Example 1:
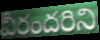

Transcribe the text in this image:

వీరందరిని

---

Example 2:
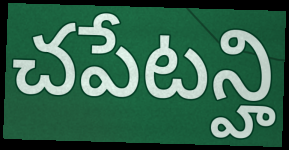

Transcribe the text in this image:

చపేటన్హి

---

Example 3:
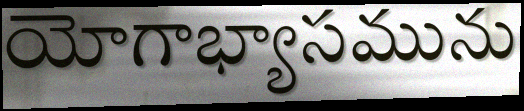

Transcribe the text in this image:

యోగాభ్యాసమును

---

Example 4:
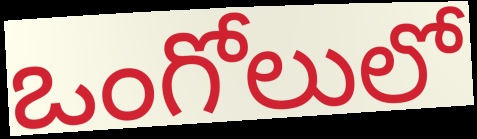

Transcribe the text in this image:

ఒంగోలులో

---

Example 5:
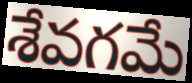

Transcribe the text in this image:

శేవగమే